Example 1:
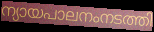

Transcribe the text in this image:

ന്യായപാലനംനടത്തി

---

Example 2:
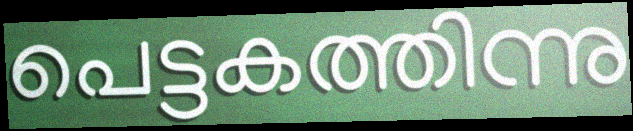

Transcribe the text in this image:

പെട്ടകത്തിന്നു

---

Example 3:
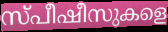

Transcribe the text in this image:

സ്പീഷീസുകളെ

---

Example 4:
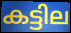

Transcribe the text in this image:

കട്ടില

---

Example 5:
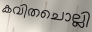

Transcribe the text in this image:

കവിതചൊല്ലി